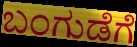
ಬಂಗುಡೆಗೆ